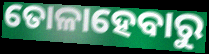
ତୋଳାହେବାରୁ